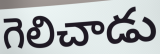
గెలిచాడు